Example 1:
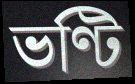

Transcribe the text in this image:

ভণ্টি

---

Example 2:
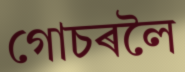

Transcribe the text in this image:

গোচৰলৈ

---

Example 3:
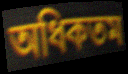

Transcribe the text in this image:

অধিকতম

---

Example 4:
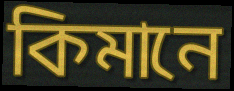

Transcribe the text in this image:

কিমানে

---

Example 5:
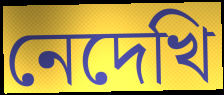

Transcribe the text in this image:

নেদেখি